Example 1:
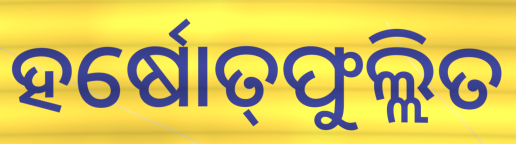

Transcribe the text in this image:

ହର୍ଷୋତ୍‌ଫୁଲ୍ଲିତ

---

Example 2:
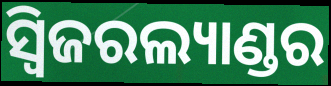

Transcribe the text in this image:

ସ୍ୱିଜରଲ୍ୟାଣ୍ଡର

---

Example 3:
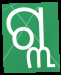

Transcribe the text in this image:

ଗ୍ଲ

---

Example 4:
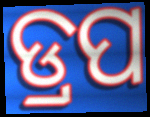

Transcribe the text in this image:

ଡ୍ରପ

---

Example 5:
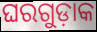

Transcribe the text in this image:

ଘରଗୁଡ଼ାକ